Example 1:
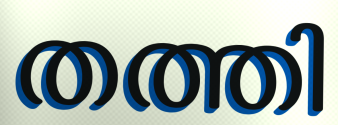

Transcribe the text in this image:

തത്തി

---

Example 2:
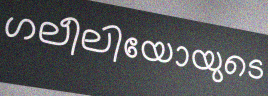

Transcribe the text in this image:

ഗലീലിയോയുടെ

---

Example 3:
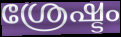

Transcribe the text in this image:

ശ്രേഷ്ടം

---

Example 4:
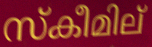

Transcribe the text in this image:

സ്കീമില്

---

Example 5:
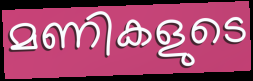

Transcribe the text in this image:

മണികളുടെ